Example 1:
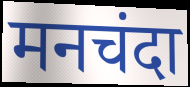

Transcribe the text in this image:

मनचंदा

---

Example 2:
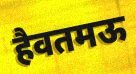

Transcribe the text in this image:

हैवतमऊ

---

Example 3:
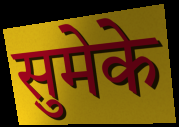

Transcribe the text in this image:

सुमेके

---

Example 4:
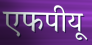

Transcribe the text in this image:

एफपीयू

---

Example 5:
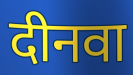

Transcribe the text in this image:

दीनवा